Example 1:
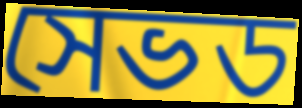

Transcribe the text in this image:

সেভড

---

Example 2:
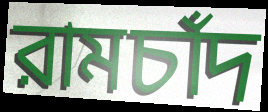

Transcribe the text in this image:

রামচাঁদ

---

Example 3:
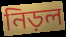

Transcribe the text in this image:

নিড়ল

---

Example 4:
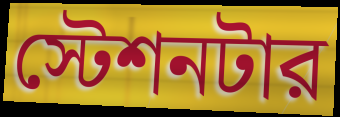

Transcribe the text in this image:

স্টেশনটার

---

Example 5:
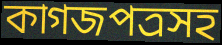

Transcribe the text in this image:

কাগজপত্রসহ